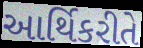
આર્થિકરીતે